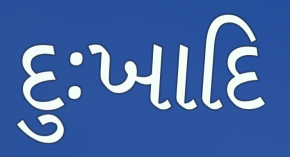
દુઃખાદિ